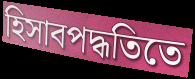
হিসাবপদ্ধতিতে